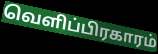
வெளிப்பிரகாரம்